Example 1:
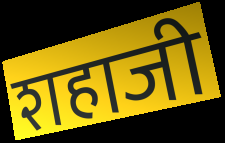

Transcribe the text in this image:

शहाजी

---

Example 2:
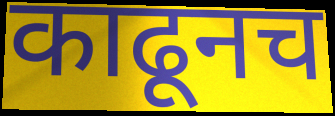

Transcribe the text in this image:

काढूनच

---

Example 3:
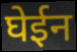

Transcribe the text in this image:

घेईन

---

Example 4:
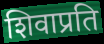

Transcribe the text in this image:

शिवाप्रति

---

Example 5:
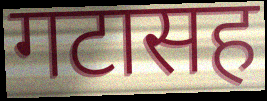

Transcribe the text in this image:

गटासह